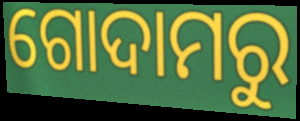
ଗୋଦାମରୁ